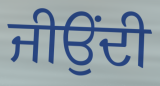
ਜੀਉਂਦੀ